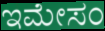
ಇಮೇಸಂ